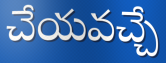
చేయవచ్చే